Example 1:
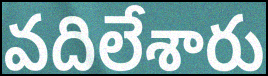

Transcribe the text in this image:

వదిలేశారు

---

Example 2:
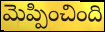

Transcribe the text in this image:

మెప్పించింది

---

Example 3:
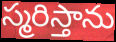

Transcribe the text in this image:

స్మరిస్తాను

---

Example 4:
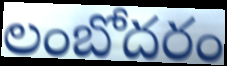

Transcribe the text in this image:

లంబోదరం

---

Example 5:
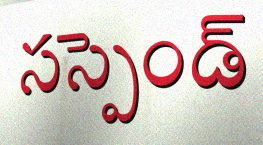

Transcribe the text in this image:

సస్పెండ్